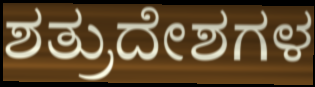
ಶತ್ರುದೇಶಗಳ